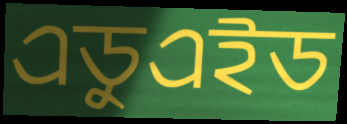
এডুএইড